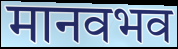
मानवभव